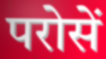
परोसें